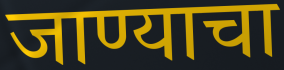
जाण्याचा